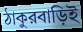
ঠাকুরবাড়িই